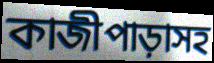
কাজীপাড়াসহ